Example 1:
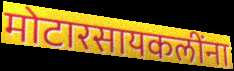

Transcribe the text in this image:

मोटारसायकलींना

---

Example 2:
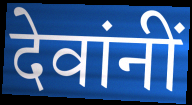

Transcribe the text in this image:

देवांनीं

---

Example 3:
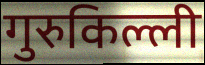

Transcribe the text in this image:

गुरुकिल्ली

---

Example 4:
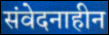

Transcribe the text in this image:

संवेदनाहीन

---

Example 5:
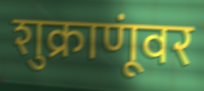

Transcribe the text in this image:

शुक्राणूंवर